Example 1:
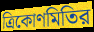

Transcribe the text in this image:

ত্রিকোণমিতির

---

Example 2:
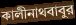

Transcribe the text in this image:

কালীনাথবাবুর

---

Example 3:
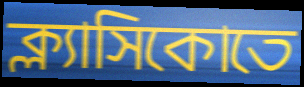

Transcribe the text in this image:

ক্ল্যাসিকোতে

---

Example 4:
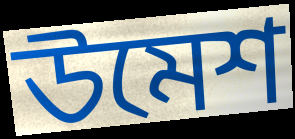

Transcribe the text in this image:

উমেশ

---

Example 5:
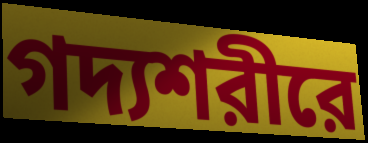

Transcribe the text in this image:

গদ্যশরীরে